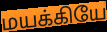
மயக்கியே